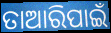
ତାଆରିପାଇଁ